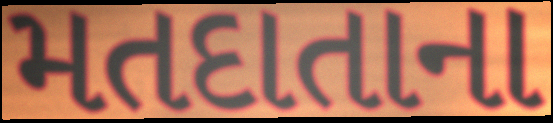
મતદાતાના